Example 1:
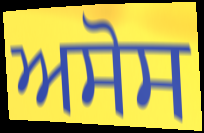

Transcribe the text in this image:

ਅਸੋਸ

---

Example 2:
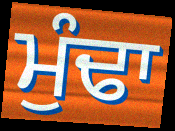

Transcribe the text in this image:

ਮੁੰਢਾ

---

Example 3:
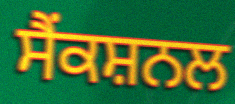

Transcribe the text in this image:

ਸੈਂਕਸ਼ਨਲ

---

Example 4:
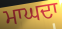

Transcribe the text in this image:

ਮਾਘਦਾ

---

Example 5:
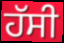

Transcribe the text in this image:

ਹੱਸੀ